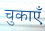
चुकाएँ